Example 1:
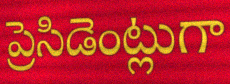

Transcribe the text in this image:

ప్రెసిడెంట్లుగా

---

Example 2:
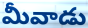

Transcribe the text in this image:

మీవాడు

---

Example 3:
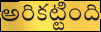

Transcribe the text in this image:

అరికట్టింది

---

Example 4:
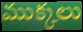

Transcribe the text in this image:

ముక్కలు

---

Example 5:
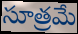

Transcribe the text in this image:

సూత్రమే